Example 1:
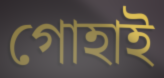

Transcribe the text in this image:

গোহাই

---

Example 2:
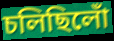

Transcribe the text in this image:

চলিছিলোঁ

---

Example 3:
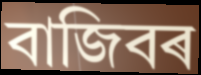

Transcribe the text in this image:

বাজিবৰ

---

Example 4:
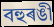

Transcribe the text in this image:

বহুৰঙী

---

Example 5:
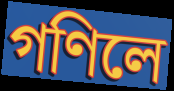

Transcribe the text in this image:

গণিলে